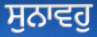
ਸੁਨਾਵਹੁ